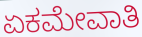
ಏಕಮೇವಾತಿ